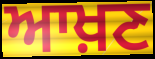
ਆਖ਼ਣ